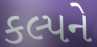
કલ્પને